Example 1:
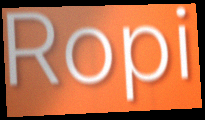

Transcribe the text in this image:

Ropi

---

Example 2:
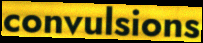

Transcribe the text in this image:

convulsions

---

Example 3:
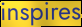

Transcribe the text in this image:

inspires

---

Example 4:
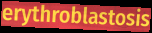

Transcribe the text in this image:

erythroblastosis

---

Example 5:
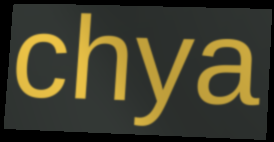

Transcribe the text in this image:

chya